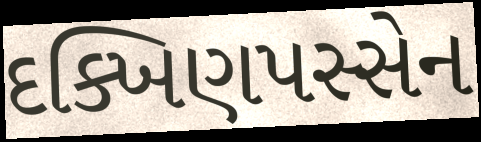
દક્ખિણપસ્સેન